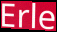
Erle